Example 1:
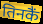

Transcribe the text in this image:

तिनकैं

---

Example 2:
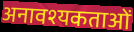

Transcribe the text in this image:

अनावश्यकताओं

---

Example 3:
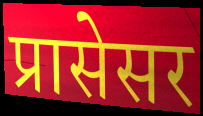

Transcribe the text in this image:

प्रासेसर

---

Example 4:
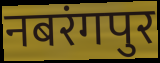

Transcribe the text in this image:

नबरंगपुर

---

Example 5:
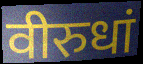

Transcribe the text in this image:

वीरुधां